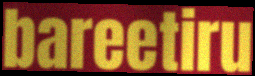
bareetiru